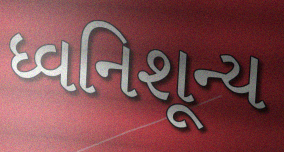
ધ્વનિશૂન્ય